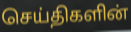
செய்திகளின்